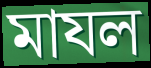
মাযল